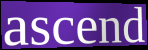
ascend